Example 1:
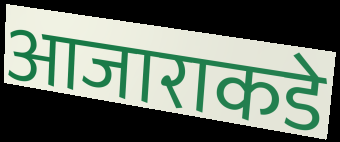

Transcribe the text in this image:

आजाराकडे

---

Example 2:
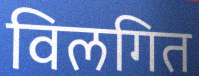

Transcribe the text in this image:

विलगित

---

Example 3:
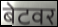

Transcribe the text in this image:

बेटवर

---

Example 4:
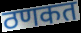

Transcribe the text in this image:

ठणकत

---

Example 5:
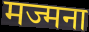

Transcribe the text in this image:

मज्मना